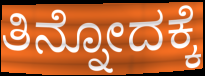
ತಿನ್ನೋದಕ್ಕೆ